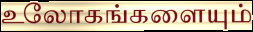
உலோகங்களையும்